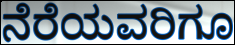
ನೆರೆಯವರಿಗೂ